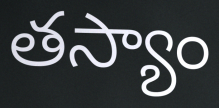
తస్యాం